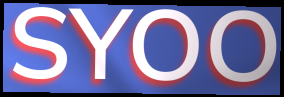
SYOO